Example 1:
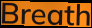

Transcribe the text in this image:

Breath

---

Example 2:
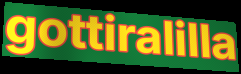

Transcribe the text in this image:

gottiralilla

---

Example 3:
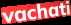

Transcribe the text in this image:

vachati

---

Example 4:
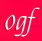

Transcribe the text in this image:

ogf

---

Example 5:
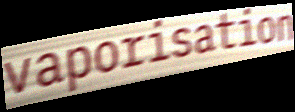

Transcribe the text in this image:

vaporisation